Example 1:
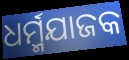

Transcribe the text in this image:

ଧର୍ମ୍ମଯାଜକ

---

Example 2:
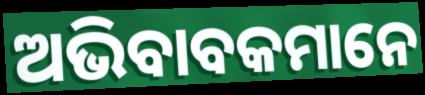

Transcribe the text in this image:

ଅଭିବାବକମାନେ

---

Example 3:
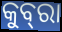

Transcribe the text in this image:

କୁବ୍‍ରା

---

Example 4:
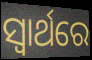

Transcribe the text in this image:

ସ୍ବାର୍ଥରେ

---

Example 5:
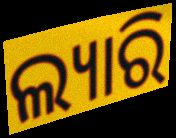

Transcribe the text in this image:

ଲ୍ୟାରି